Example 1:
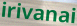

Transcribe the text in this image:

irivanai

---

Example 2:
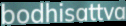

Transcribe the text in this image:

bodhisattva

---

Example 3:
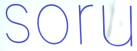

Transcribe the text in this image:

soru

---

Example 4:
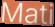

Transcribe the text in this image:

Mati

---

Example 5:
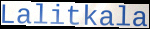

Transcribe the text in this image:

Lalitkala